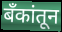
बँकांतून